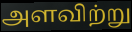
அளவிற்று